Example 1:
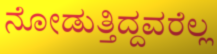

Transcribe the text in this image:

ನೋಡುತ್ತಿದ್ದವರೆಲ್ಲ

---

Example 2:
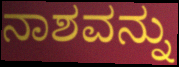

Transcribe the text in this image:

ನಾಶವನ್ನು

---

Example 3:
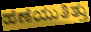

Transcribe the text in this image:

ಹೆಣೆಯುತಿತ್ತು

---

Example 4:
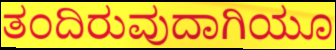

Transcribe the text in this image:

ತಂದಿರುವುದಾಗಿಯೂ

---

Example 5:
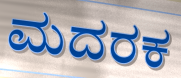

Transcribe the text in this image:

ಮದರಕ